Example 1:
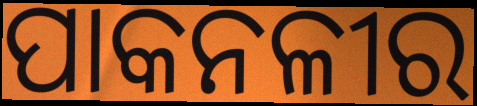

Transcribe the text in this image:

ପାକନଳୀର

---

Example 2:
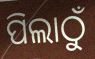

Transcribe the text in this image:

ପିଲାଠୁଁ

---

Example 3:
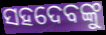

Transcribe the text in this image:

ସହଦେବଙ୍କୁ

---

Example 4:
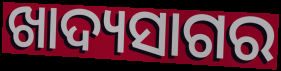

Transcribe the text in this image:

ଖାଦ୍ୟସାଗର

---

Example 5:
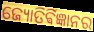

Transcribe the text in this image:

ଜ୍ୟୋତିର୍ଵିଜ୍ଞାନର